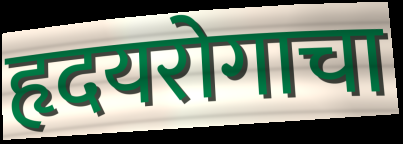
हृदयरोगाचा